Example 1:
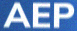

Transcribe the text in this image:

AEP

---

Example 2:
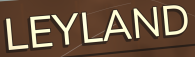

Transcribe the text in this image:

LEYLAND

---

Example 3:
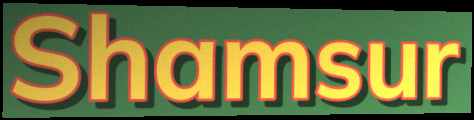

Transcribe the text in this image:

Shamsur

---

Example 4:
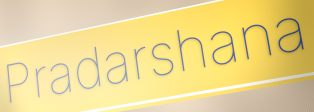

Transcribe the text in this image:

Pradarshana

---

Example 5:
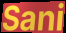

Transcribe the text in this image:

Sani